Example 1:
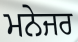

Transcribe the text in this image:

ਮਨੇਜਰ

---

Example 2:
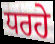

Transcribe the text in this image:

ਧਰਹੇ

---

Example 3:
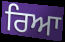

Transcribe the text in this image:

ਰਿਆ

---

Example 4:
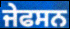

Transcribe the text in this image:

ਜੇਫਸਨ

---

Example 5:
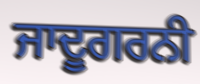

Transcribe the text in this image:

ਜਾਦੂਗਰਨੀ